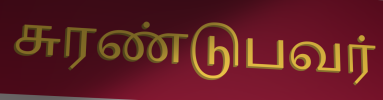
சுரண்டுபவர்